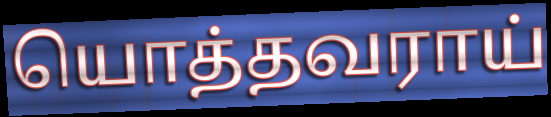
யொத்தவராய்